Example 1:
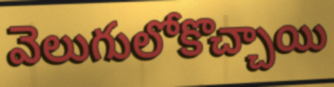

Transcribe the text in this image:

వెలుగులోకొచ్చాయి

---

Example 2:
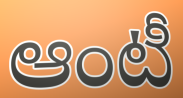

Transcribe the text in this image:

ఆంటీ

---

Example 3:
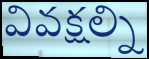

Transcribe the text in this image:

వివక్షల్ని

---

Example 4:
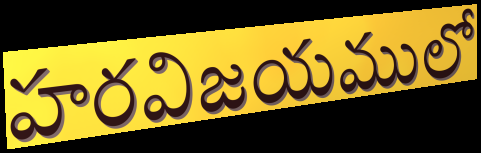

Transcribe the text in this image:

హరవిజయములో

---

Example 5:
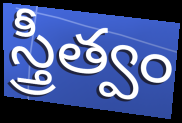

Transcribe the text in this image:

స్త్రీత్వం